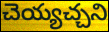
చెయ్యచ్చని